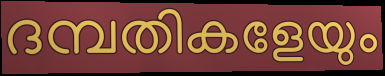
ദമ്പതികളേയും